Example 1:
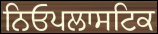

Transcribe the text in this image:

ਨਿਓਪਲਾਸਟਿਕ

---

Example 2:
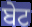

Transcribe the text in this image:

ਬੇਟ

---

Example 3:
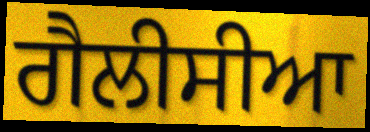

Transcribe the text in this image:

ਗੈਲੀਸੀਆ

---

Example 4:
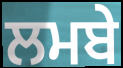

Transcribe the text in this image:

ਲਮਬੇ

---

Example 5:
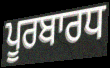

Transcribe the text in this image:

ਪੂਰਬਾਰਧ